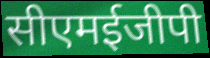
सीएमईजीपी